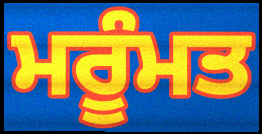
ਮਰੂੰਮਤ